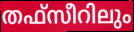
തഫ്സീറിലും